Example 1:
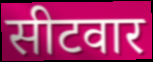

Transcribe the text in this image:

सीटवार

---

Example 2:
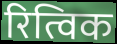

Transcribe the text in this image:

रित्विक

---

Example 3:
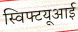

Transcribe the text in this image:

स्विफ्टयूआई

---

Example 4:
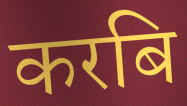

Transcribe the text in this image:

करबि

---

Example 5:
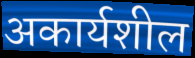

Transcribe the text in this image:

अकार्यशील